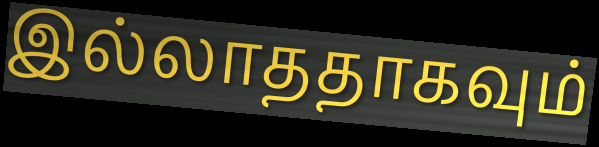
இல்லாததாகவும்